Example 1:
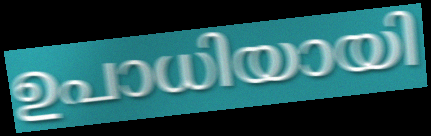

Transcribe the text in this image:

ഉപാധിയായി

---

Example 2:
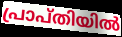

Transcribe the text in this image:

പ്രാപ്തിയിൽ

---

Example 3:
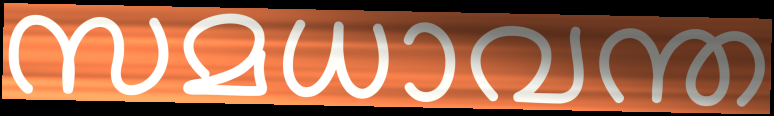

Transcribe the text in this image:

സമധാവന്ത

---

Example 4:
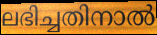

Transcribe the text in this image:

ലഭിച്ചതിനാൽ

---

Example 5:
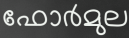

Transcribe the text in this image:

ഫോർമുല